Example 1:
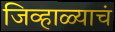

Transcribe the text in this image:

जिव्हाळ्याचं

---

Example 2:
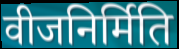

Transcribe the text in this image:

वीजनिर्मिति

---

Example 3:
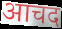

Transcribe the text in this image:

आचद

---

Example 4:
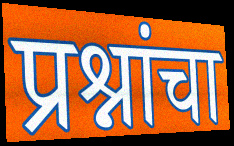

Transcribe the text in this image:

प्रश्नांचा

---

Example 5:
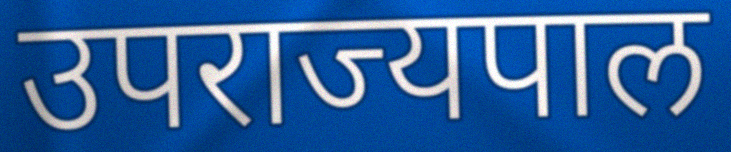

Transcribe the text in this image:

उपराज्यपाल